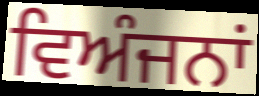
ਵਿਅੰਜਨਾਂ